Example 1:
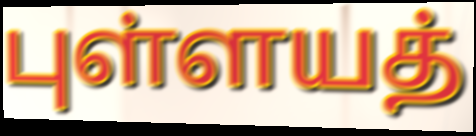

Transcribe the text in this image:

புள்ளயத்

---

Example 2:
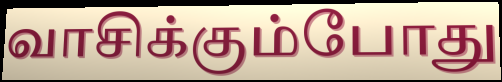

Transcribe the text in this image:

வாசிக்கும்போது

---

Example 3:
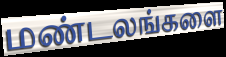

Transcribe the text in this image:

மண்டலங்களை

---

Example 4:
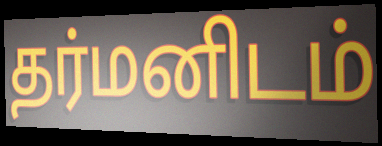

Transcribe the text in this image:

தர்மனிடம்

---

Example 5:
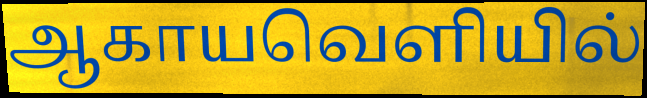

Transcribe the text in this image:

ஆகாயவெளியில்